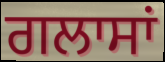
ਗਲਾਸਾਂ